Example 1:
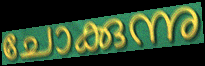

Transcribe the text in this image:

ചോക്കുന്നു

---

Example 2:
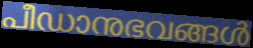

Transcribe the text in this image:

പീഡാനുഭവങ്ങൾ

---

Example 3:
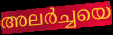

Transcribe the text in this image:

അലർച്ചയെ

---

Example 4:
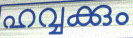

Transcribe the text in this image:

ഹവ്വക്കും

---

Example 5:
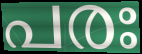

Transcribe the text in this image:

പരഃ